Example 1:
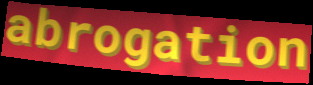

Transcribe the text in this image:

abrogation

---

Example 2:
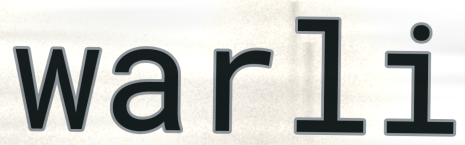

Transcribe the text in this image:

warli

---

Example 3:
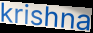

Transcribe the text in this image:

krishna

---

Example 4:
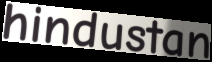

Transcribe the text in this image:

hindustan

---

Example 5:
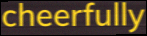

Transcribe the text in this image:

cheerfully